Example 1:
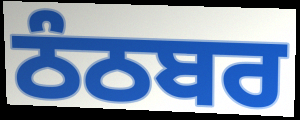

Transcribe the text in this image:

ਠੰਠਬਰ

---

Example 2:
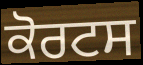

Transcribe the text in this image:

ਕੋਰਟਸ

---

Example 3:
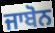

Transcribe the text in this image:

ਜਾਬੋਨ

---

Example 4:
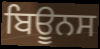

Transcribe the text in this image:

ਬਿਊਨਸ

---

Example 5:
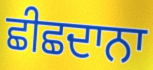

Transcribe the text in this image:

ਛੀਛਦਾਨਾ